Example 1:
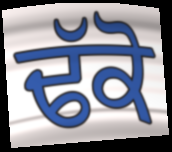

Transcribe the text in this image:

ਢੱਕੋ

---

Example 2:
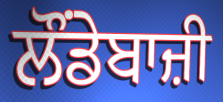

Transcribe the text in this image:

ਲੌਂਡੇਬਾਜ਼ੀ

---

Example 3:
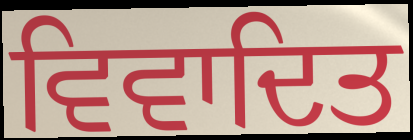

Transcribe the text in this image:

ਵਿਵਾਦਿਤ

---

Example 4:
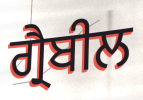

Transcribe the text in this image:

ਗ੍ਰੈਬੀਲ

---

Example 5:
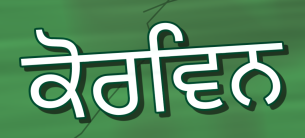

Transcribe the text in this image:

ਕੋਰਵਿਨ